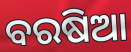
ବରଷିଆ